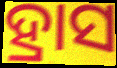
ହ୍ରାସ